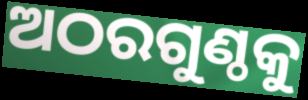
ଅଠରଗୁଣ୍ଠକୁ